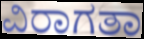
ವಿರಾಗತಾ